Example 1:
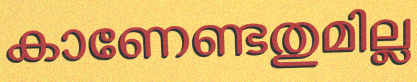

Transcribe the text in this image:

കാണേണ്ടതുമില്ല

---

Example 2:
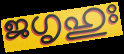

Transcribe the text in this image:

ജഗൃഹുഃ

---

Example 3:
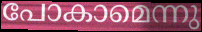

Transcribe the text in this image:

പോകാമെന്നു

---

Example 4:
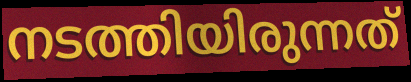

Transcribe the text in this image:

നടത്തിയിരുന്നത്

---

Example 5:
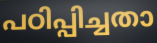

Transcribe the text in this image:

പഠിപ്പിച്ചതാ